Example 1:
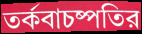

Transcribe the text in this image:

তর্কবাচষ্পতির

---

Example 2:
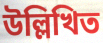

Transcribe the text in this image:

উল্লিখিত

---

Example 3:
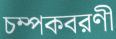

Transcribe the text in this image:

চম্পকবরণী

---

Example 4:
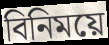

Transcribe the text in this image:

বিনিময়ে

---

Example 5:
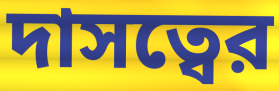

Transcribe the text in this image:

দাসত্বের